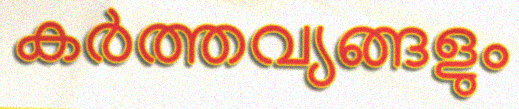
കർത്തവ്യങ്ങളും